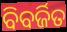
ବିବର୍ଜିତ